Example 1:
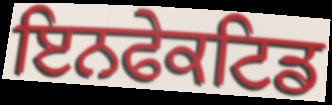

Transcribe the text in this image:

ਇਨਫੇਕਟਿਡ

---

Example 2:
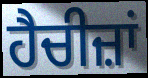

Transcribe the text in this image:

ਹੈਚੀਜ਼ਾਂ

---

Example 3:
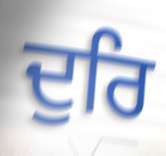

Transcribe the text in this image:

ਦੁਰਿ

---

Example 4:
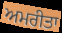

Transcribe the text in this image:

ਅਮਰੀਤਾ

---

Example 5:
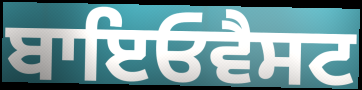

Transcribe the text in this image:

ਬਾਇਓਵੈਸਟ